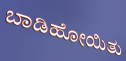
ಬಾಡಿಹೋಯಿತು